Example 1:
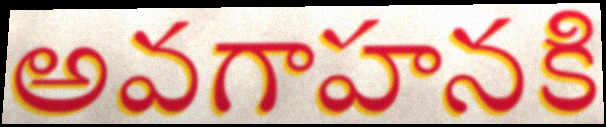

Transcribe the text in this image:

అవగాహనకి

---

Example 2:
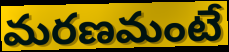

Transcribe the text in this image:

మరణమంటే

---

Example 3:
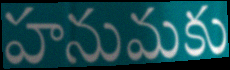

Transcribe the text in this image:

హనుమకు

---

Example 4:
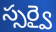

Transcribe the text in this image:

స్సర్వై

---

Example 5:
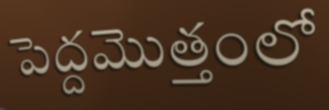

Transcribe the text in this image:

పెద్దమొత్తంలో